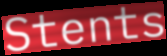
Stents